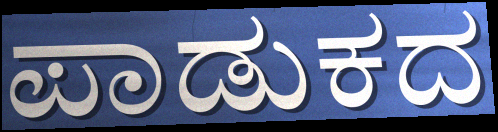
ಪಾಡುಕದ